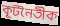
কূটনৈতীক